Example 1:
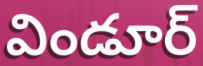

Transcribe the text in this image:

విండూర్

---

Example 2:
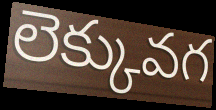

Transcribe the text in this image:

లెక్కువగ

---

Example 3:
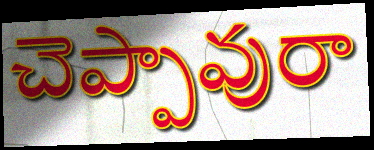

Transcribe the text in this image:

చెప్పావురా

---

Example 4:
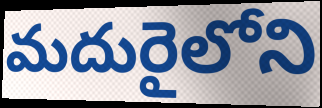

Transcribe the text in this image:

మదురైలోని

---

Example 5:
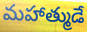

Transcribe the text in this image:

మహాత్ముడే